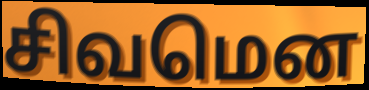
சிவமென